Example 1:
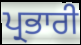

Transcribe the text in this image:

ਪ੍ਰਭਾਰੀ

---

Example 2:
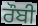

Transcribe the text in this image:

ਰੌਬੀ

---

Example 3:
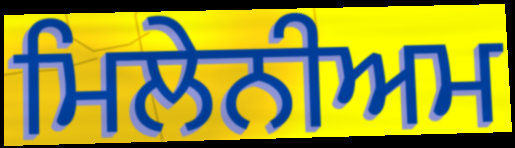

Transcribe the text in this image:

ਮਿਲੇਨੀਅਮ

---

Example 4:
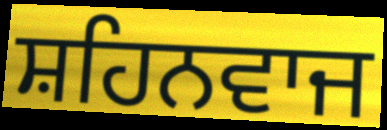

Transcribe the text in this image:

ਸ਼ਹਿਨਵਾਜ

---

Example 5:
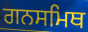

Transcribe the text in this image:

ਗਨਸਮਿਥ